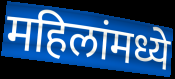
महिलांमध्ये